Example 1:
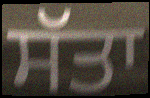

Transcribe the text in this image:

ਸੱਤਾ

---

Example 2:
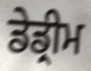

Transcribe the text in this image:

ਡੇਡ੍ਰੀਮ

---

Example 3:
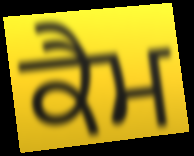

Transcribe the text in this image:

ਕੈਮ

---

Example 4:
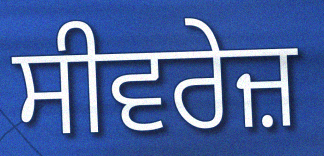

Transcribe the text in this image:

ਸੀਵਰੇਜ਼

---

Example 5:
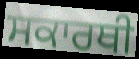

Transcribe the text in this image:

ਸਕਾਰਥੀ